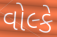
વોલ્કે